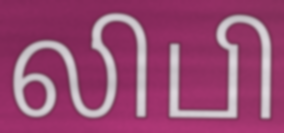
லிபி